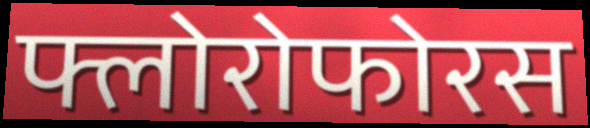
फ्लोरोफोरस